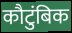
कौटुंबिक